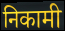
निकामी